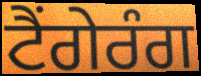
ਟੈਂਗੇਰੰਗ